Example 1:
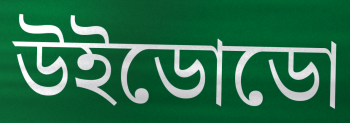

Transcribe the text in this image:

উইডোডো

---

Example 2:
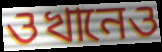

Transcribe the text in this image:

ওখানেও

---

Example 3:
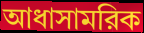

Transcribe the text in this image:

আধাসামরিক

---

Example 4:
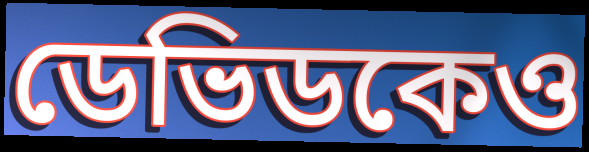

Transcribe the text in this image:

ডেভিডকেও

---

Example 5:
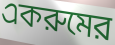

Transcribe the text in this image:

একরুমের